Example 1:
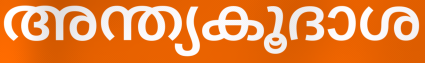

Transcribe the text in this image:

അന്ത്യകൂദാശ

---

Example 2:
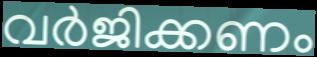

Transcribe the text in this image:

വർജിക്കണം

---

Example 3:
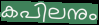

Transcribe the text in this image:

കപിലനും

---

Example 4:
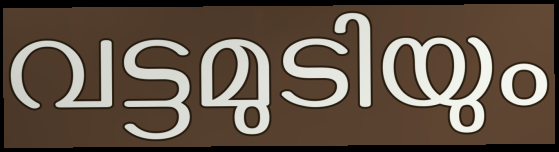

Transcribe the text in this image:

വട്ടമുടിയും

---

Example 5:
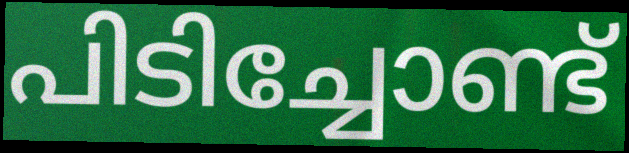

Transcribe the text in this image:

പിടിച്ചോണ്ട്